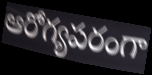
ఆరోగ్యపరంగా